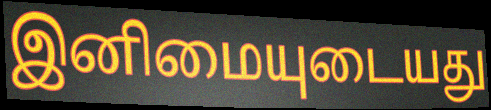
இனிமையுடையது